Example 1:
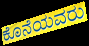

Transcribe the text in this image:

ಕೊನೆಯವರು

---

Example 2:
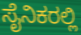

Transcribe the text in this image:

ಸೈನಿಕರಲ್ಲಿ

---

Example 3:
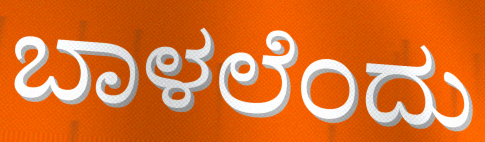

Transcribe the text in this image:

ಬಾಳಲೆಂದು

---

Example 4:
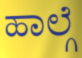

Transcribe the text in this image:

ಹಾಲ್ಗೆ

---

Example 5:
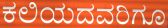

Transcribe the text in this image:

ಕಲಿಯದವರಿಗೂ